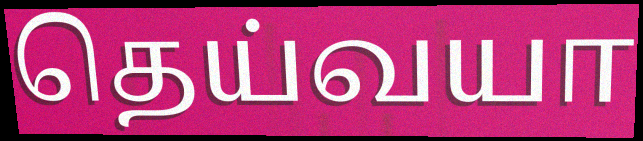
தெய்வயா